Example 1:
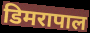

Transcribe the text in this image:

डिमरापाल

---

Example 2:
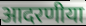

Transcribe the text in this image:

आदरणीया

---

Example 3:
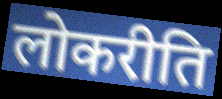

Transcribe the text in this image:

लोकरीति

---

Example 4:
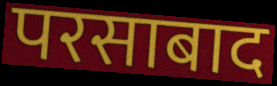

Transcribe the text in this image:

परसाबाद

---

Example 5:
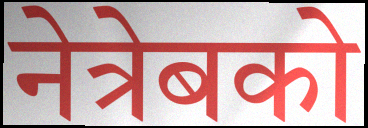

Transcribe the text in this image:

नेत्रेबको